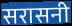
सरासनी